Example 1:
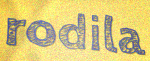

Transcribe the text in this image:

rodila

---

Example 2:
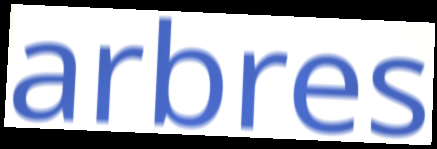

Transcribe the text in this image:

arbres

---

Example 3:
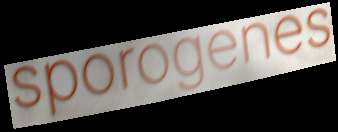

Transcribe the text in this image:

sporogenes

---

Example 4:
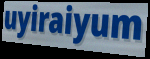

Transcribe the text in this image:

uyiraiyum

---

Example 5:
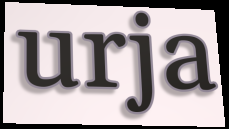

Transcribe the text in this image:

urja